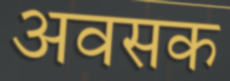
अवसक